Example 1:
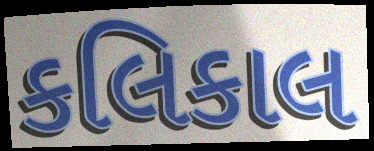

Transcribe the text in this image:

કલિકાલ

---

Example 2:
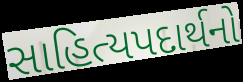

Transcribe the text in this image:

સાહિત્યપદાર્થનો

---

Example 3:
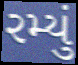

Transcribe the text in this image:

રમ્યું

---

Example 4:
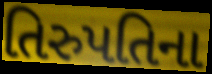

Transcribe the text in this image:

તિરુપતિના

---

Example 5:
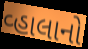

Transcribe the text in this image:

વ્હાલાનો